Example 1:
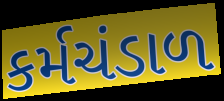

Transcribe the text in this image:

કર્મચંડાળ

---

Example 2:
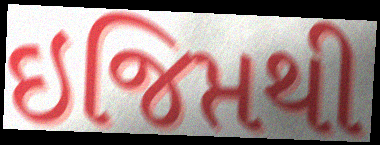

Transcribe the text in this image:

ઇજિપ્તથી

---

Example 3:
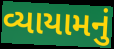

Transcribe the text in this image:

વ્યાયામનું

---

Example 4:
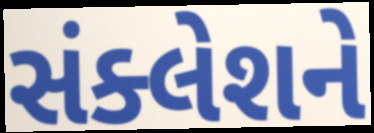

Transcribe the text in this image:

સંક્લેશને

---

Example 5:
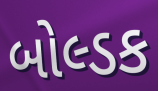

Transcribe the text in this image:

બોલ્ડક